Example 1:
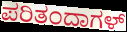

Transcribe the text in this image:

ಪರಿತಂದಾಗಳ್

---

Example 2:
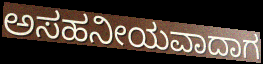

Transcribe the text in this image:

ಅಸಹನೀಯವಾದಾಗ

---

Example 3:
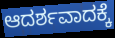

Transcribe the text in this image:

ಆದರ್ಶವಾದಕ್ಕೆ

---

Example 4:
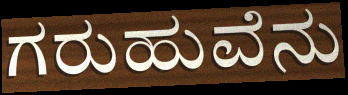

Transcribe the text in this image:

ಗರುಹುವೆನು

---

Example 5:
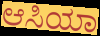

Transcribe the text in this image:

ಆಸಿಯಾ